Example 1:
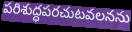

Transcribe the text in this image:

పరిశుద్ధపరచుటవలనను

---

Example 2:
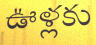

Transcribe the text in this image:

ఊళ్లకు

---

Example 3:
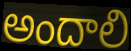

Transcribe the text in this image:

అందాలి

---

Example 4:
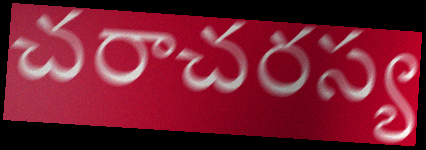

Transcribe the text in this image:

చరాచరస్య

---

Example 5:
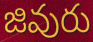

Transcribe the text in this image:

జివురు